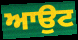
ਆਉਟ